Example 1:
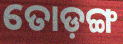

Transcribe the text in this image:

ତୋଡ଼ଙ୍ଗ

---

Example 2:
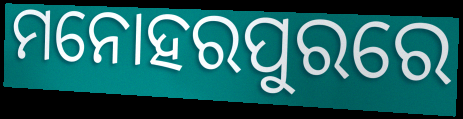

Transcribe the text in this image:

ମନୋହରପୁରରେ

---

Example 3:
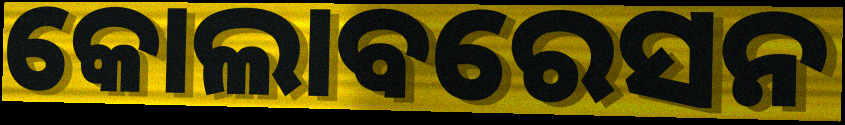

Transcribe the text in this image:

କୋଲାବରେସନ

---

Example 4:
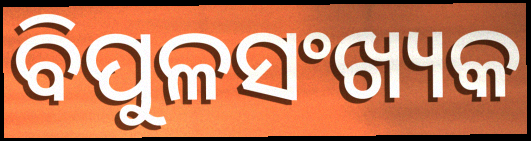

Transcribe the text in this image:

ବିପୁଳସଂଖ୍ୟକ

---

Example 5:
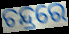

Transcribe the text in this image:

ଚନ୍ଦ୍ରରେ